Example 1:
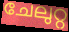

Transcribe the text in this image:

ചേലുറ്റ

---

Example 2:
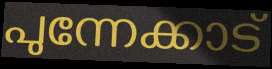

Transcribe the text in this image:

പുന്നേക്കാട്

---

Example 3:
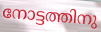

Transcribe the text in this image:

നോട്ടത്തിനു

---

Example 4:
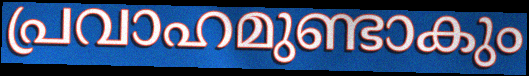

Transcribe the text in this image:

പ്രവാഹമുണ്ടാകും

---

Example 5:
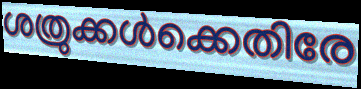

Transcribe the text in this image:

ശത്രുക്കൾക്കെതിരേ